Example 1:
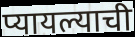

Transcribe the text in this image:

प्यायल्याची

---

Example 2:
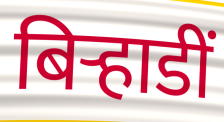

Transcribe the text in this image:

बिर्‍हाडीं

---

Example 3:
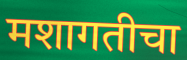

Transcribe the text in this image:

मशागतीचा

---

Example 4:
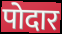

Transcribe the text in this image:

पोदार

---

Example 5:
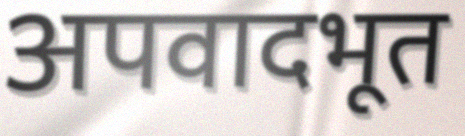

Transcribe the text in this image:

अपवादभूत